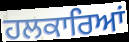
ਹਲਕਾਰਿਆਂ